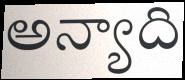
అన్యాది